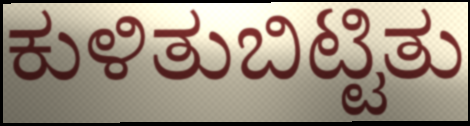
ಕುಳಿತುಬಿಟ್ಟಿತು